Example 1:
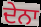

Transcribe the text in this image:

ਦੇਨਾ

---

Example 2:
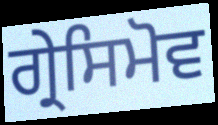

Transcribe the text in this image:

ਗ੍ਰੇਸਿਮੋਵ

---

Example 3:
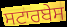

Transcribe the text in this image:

ਸਟਾਰਬੇਸ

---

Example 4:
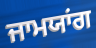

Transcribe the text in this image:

ਜਾਮਯਾਂਗ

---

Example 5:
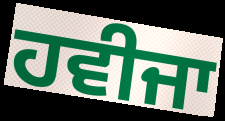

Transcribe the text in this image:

ਹਵੀਜਾ